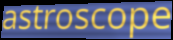
astroscope